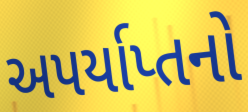
અપર્યાપ્તનો